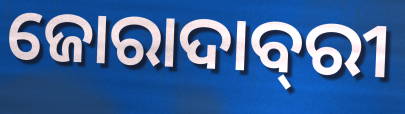
ଜୋରାଦାବ୍‌ରୀ